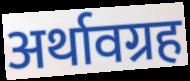
अर्थावग्रह